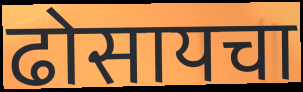
ढोसायचा